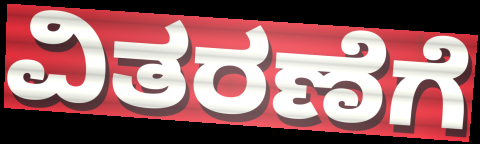
ವಿತರಣೆಗೆ